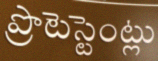
ప్రొటెస్టెంట్లు